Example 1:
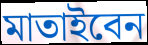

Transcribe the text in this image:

মাতাইবেন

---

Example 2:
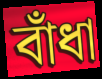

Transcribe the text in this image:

বাঁধা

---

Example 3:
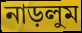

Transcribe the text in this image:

নাড়লুম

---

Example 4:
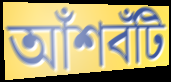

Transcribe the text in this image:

আঁশবঁটি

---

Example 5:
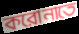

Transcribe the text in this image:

করোনাতে